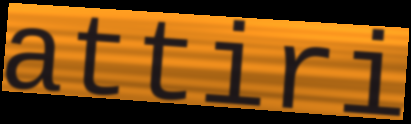
attiri